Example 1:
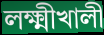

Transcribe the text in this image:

লক্ষ্মীখালী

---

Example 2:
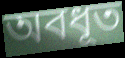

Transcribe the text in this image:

অবধূত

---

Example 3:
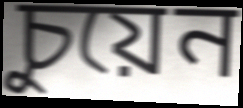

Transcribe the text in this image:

চুয়েন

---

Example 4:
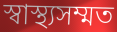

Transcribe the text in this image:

স্বাস্থ্যসম্মত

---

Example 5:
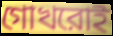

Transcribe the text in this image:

গোখরোই